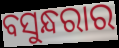
ବସୁନ୍ଧରାର